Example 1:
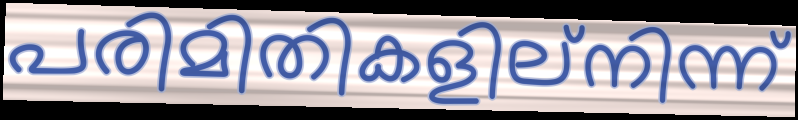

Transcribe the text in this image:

പരിമിതികളില്നിന്ന്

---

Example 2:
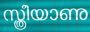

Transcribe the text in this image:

സ്ത്രീയാണു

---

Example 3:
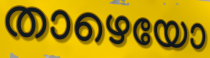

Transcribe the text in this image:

താഴെയോ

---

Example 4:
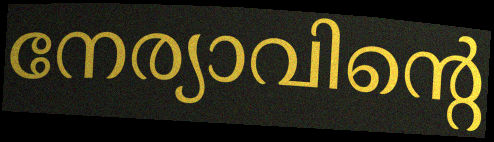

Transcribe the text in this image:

നേര്യാവിന്റെ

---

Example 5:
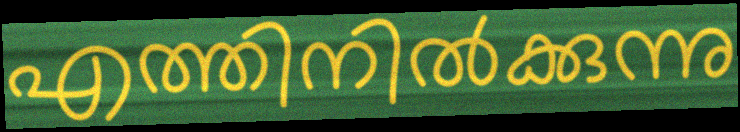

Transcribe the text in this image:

എത്തിനിൽക്കുന്നു